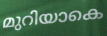
മുറിയാകെ